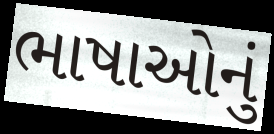
ભાષાઓનું